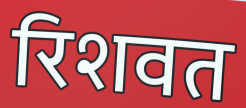
रिशवत